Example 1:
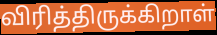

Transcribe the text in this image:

விரித்திருக்கிறாள்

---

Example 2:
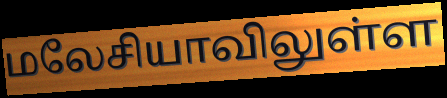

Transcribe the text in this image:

மலேசியாவிலுள்ள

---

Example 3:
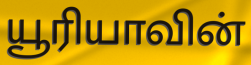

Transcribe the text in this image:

யூரியாவின்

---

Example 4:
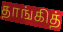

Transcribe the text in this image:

தாங்கித்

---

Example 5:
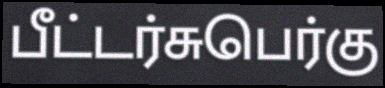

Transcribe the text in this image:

பீட்டர்சுபெர்கு